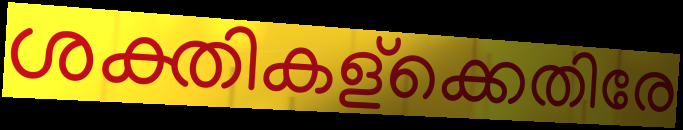
ശക്തികള്ക്കെതിരേ